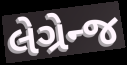
લેગ્રેન્જ